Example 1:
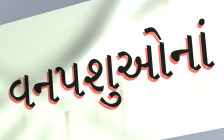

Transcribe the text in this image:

વનપશુઓનાં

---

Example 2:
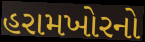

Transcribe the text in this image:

હરામખોરનો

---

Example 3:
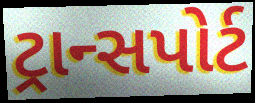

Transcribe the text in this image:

ટ્રાન્સપોર્ટ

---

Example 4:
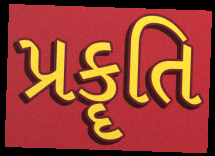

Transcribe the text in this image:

પ્રકૄતિ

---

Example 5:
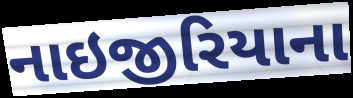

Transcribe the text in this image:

નાઇજીરિયાના